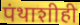
पंथाशीही